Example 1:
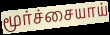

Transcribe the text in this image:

மூர்ச்சையாய்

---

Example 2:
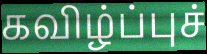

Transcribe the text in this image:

கவிழ்ப்புச்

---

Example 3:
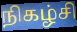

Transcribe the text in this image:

நிகழ்சி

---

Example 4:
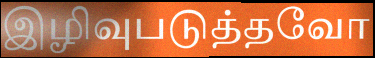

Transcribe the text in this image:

இழிவுபடுத்தவோ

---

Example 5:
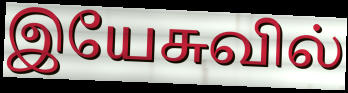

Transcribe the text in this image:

இயேசுவில்